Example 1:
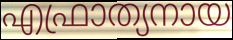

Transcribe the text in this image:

എഫ്രാത്യനായ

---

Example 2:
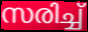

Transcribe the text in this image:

സരിച്ച്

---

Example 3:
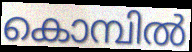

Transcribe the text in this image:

കൊമ്പിൽ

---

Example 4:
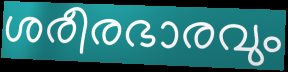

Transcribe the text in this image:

ശരീരഭാരവും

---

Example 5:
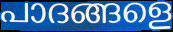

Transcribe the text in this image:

പാദങ്ങളെ